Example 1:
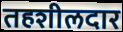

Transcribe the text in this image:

तहशीलदार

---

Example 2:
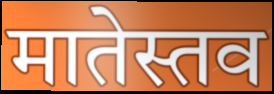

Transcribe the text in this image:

मातेस्तव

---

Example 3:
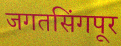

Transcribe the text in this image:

जगतसिंगपूर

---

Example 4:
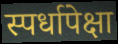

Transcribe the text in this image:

स्पर्धापेक्षा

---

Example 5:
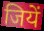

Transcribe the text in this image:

जियें